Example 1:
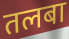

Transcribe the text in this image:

तलबा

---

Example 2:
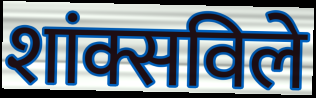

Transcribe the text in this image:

शांक्सविले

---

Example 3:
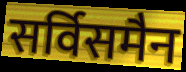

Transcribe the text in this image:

सर्विसमैन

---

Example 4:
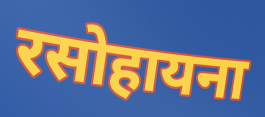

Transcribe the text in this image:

रसोहायना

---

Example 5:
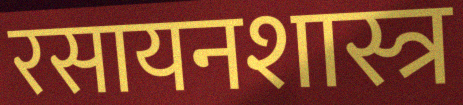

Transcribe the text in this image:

रसायनशास्त्र